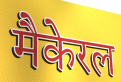
मैकेरल